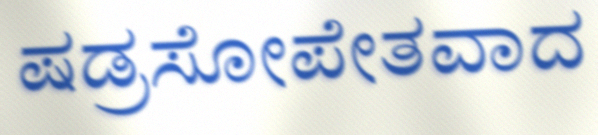
ಷಡ್ರಸೋಪೇತವಾದ